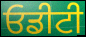
ਓਡੀਟੀ